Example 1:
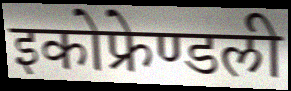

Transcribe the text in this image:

इकोफ्रेण्डली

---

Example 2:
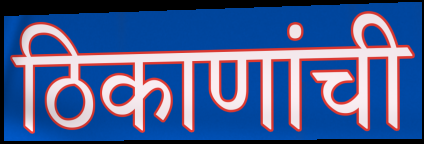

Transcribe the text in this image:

ठिकाणांची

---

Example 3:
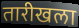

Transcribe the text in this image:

तारीखला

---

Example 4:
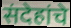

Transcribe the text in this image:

संदेहांचे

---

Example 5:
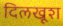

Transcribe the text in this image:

दिलखूश